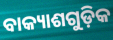
ବାକ୍ୟାଶଗୁଡ଼ିକ